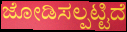
ಜೋಡಿಸಲ್ಪಟ್ಟಿದೆ